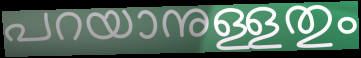
പറയാനുള്ളതും